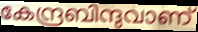
കേന്ദ്രബിന്ദുവാണ്